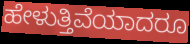
ಹೇಳುತ್ತಿವೆಯಾದರೂ